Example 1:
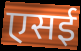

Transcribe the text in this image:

एसई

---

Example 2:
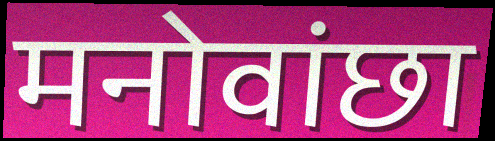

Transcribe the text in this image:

मनोवांछा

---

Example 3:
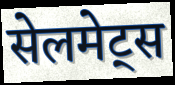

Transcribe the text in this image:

सेलमेट्स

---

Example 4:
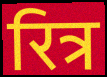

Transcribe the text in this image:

रित्र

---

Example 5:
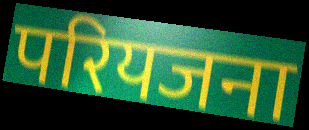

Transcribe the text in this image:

परियजना